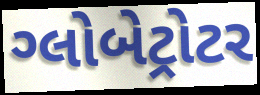
ગ્લોબેટ્રોટર